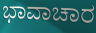
ಭಾವಾಚಾರ